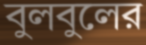
বুলবুলের